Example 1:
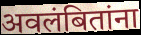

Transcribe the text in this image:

अवलंबितांना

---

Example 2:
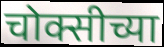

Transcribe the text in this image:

चोक्सीच्या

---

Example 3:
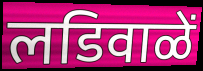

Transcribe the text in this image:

लडिवाळें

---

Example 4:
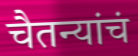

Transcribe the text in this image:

चैतन्यांचं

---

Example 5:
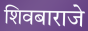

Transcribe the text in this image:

शिवबाराजे